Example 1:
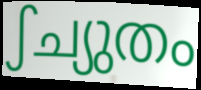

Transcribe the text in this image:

ഽച്യുതം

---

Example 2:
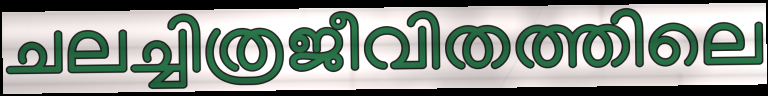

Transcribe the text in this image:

ചലച്ചിത്രജീവിതത്തിലെ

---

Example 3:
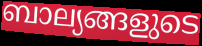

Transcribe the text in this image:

ബാല്യങ്ങളുടെ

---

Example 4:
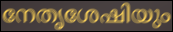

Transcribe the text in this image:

നേതൃശേഷിയും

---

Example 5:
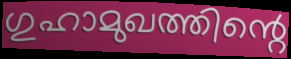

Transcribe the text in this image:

ഗുഹാമുഖത്തിന്റെ